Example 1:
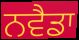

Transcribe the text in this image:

ਨਵੈਡਾ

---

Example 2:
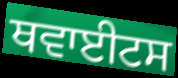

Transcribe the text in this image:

ਥਵਾਈਟਸ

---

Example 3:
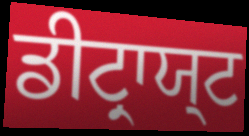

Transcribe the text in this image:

ਡੀਟ੍ਰਾਯ੍ਟ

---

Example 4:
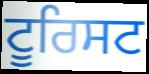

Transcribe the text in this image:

ਟੂਰਿਸਟ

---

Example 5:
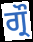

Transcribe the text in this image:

ਗ੍ਰੌ